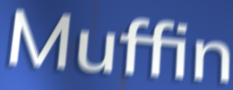
Muffin